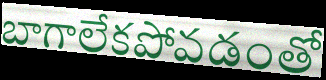
బాగాలేకపోవడంతో